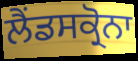
ਲੈਂਡਸਕ੍ਰੋਨਾ